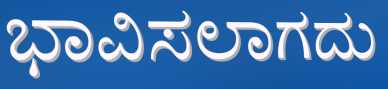
ಭಾವಿಸಲಾಗದು